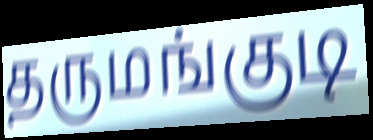
தருமங்குடி